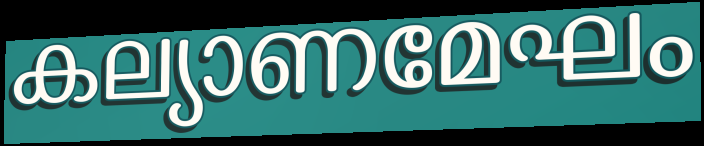
കല്യാണമേഘം